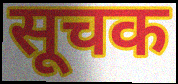
सूचक